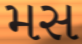
મસ